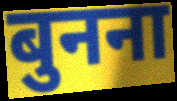
बुनना